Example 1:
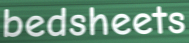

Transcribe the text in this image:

bedsheets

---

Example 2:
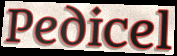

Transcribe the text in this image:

Pedicel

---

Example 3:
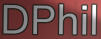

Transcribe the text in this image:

DPhil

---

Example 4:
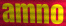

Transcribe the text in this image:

amno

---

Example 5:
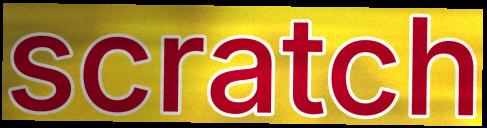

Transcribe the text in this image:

scratch